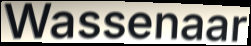
Wassenaar